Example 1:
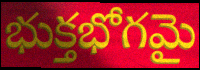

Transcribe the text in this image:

భుక్తభోగమై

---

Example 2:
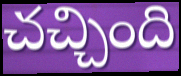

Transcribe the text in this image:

చచ్చింది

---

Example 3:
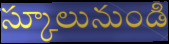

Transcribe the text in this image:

స్కూలునుండి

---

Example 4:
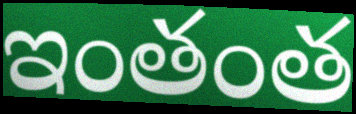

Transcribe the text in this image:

ఇంతంత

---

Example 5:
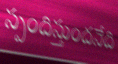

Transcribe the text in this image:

స్పందిస్తుందనేది